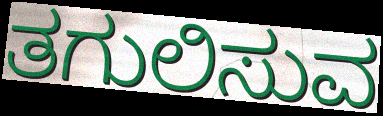
ತಗುಲಿಸುವ